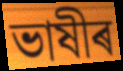
ভাষীৰ